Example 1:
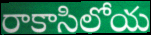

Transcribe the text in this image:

రాకాసిలోయ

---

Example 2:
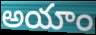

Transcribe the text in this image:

అయాం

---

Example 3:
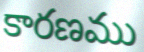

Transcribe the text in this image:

కారణము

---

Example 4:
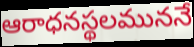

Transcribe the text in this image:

ఆరాధనస్థలముననే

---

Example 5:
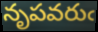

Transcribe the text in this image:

నృపవరుఁ